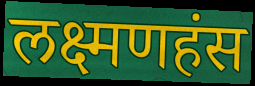
लक्ष्मणहंस